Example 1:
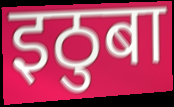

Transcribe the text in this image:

इठुबा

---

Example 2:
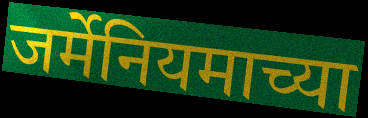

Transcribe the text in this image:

जर्मेनियमाच्या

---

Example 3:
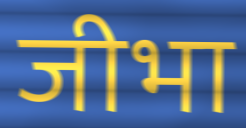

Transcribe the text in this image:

जीभा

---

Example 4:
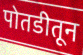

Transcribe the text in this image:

पोतडीतून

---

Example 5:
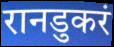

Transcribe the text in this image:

रानडुकरं